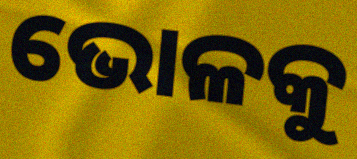
ଭୋଳକୁ